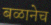
बळानेच